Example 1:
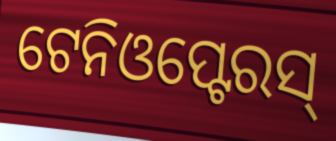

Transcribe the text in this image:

ଟେନିଓପ୍ଟେରସ୍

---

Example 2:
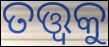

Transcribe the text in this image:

ତତ୍ତ୍ଵକୁ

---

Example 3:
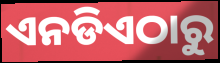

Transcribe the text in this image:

ଏନଡିଏଠାରୁ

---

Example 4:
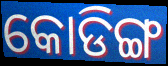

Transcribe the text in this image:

କୋଡିଙ୍ଗ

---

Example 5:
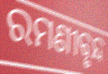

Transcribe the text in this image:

ରମଣୀବୃନ୍ଦ